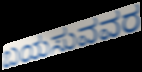
ಬಯಸುವವರ